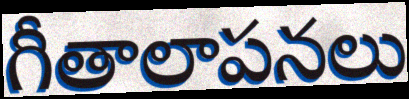
గీతాలాపనలు